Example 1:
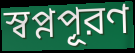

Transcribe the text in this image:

স্বপ্নপূরণ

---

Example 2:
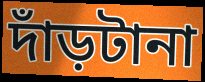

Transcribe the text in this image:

দাঁড়টানা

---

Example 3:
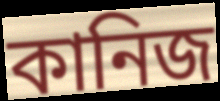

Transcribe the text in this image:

কানিজ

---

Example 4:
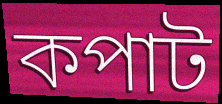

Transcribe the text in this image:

কপাট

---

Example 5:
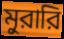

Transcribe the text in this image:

মুরারি